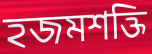
হজমশক্তি